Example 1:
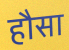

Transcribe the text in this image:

हौसा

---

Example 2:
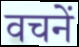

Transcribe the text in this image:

वचनें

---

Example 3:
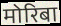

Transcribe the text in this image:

मोरिबा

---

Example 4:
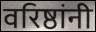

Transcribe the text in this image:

वरिष्ठांनी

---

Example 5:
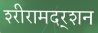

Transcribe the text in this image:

श्रीरामदर्शन